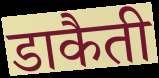
डाकैती